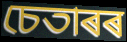
চেতাৰৰ